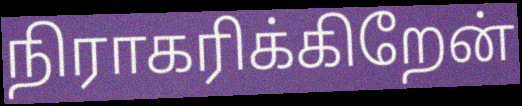
நிராகரிக்கிறேன்